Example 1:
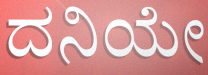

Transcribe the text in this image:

ದನಿಯೇ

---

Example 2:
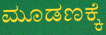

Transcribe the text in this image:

ಮೂಡಣಕ್ಕೆ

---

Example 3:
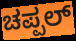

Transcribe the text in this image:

ಚಪ್ಪಲ್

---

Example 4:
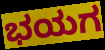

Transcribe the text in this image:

ಭಯಗ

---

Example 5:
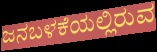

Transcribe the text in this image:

ಜನಬಳಕೆಯಲ್ಲಿರುವ